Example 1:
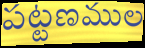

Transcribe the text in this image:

పట్టణముల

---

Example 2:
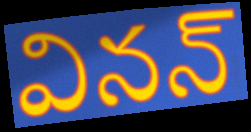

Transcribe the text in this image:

వినన్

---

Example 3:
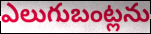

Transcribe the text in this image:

ఎలుగుబంట్లను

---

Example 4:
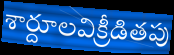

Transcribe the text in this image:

శార్దూలవిక్రీడితపు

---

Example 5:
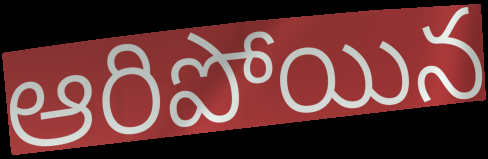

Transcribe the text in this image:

ఆరిపోయిన